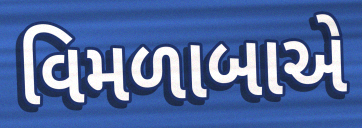
વિમળાબાએ